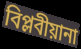
বিপ্লবীয়ানা